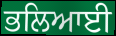
ਭਲਿਆਈ